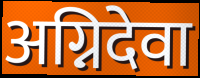
अग्निदेवा